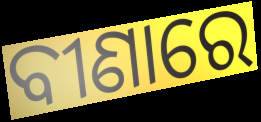
ବୀଣାରେ